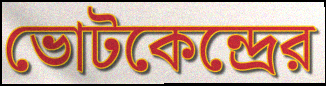
ভোটকেন্দ্রের